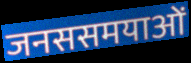
जनससमयाओं